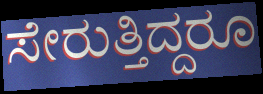
ಸೇರುತ್ತಿದ್ದರೂ